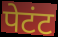
पेटंट